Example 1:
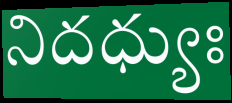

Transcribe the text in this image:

నిదధ్యుః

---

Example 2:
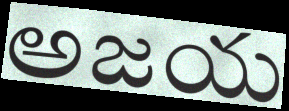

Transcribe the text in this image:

అజయ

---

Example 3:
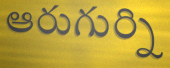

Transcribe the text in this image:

ఆరుగుర్ని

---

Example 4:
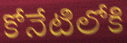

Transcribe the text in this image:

కోనేటిలోకి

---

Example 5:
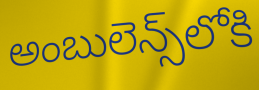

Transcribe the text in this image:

అంబులెన్స్‌లోకి